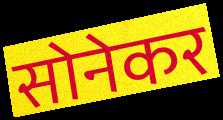
सोनेकर